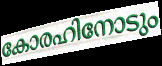
കോരഹിനോടും